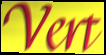
Vert